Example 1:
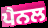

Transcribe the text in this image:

ਪੈਨਲ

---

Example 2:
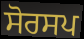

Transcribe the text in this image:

ਸੋਰਸਪ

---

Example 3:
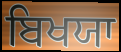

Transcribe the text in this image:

ਬਿਖਯਾ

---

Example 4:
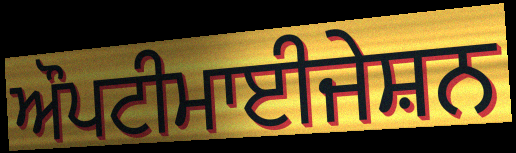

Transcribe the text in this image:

ਔਪਟੀਮਾਈਜੇਸ਼ਨ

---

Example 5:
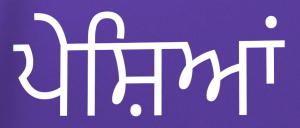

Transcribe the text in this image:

ਪੇਸ਼ਿਆਂ